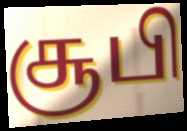
சூபி